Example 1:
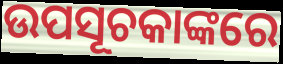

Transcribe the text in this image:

ଉପସୂଚକାଙ୍କରେ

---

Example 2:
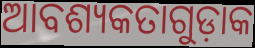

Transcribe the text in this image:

ଆବଶ୍ୟକତାଗୁଡ଼ାକ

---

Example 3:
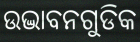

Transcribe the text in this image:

ଉଦ୍ଭାବନଗୁଡିକ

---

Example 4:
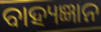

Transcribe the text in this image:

ବାହ୍ୟଜ୍ଞାନ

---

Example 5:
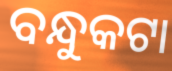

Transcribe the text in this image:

ବନ୍ଧୁକଟା